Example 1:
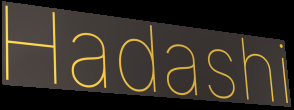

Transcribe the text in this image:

Hadashi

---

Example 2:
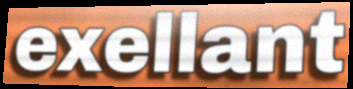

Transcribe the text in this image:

exellant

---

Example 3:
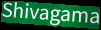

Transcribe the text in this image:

Shivagama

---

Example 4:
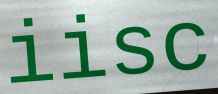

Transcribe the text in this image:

iisc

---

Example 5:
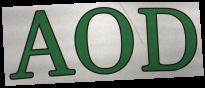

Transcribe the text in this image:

AOD